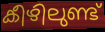
കീഴിലുണ്ട്